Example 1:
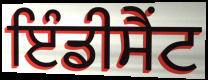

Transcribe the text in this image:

ਇੰਡੀਸੈਂਟ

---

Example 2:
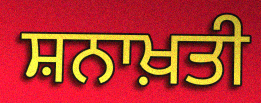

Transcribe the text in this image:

ਸ਼ਨਾਖ਼ਤੀ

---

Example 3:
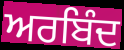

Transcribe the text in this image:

ਅਰਬਿੰਦ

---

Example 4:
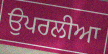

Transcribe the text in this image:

ਉਪਰਲੀਆ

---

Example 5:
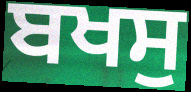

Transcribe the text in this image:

ਬਖਸੁ